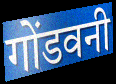
गोंडवनी